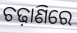
ଚଢ଼ାଣିରେ